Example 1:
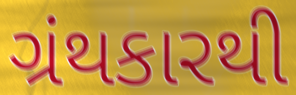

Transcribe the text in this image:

ગ્રંથકારથી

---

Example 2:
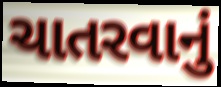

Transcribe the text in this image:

ચાતરવાનું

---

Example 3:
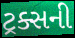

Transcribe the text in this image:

ટ્રક્સની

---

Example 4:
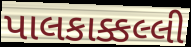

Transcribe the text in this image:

પાલકાક્કલ્લી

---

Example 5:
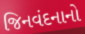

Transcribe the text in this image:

જિનવંદનાનો